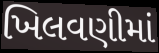
ખિલવણીમાં